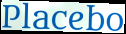
Placebo